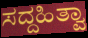
ಸದ್ದಹಿತ್ವಾ